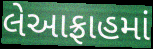
લેઆફ્રાહમાં